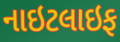
નાઇટલાઇફ